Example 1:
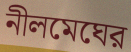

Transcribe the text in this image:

নীলমেঘের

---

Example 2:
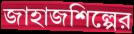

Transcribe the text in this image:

জাহাজশিল্পের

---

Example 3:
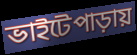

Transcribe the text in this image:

ভাইটেপাড়ায়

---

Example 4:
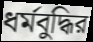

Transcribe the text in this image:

ধর্মবুদ্ধির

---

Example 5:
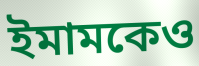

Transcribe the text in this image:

ইমামকেও